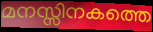
മനസ്സിനകത്തെ